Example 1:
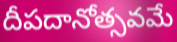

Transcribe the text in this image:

దీపదానోత్సవమే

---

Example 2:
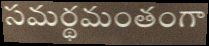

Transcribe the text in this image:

సమర్థమంతంగా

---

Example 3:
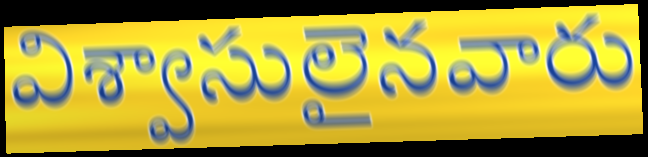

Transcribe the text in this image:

విశ్వాసులైనవారు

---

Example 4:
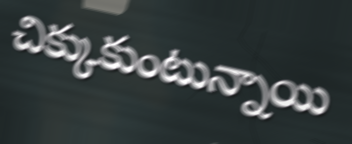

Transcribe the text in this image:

చిక్కుకుంటున్నాయి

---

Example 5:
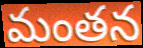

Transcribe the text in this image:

మంతన